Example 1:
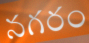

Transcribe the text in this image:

నగరం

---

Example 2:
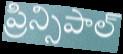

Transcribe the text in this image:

ప్రిన్సిపాల్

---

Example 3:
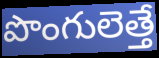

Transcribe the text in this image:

పొంగులెత్తే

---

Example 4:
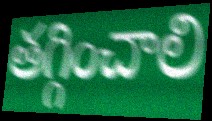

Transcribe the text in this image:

తగ్గించాలి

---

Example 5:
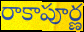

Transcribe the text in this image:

రాకాపూర్ణ